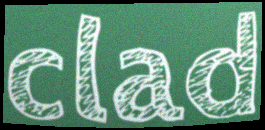
clad